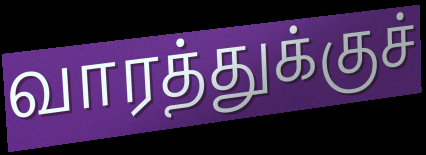
வாரத்துக்குச்